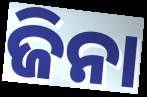
ଜିନା